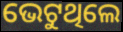
ଭେଟୁଥିଲେ